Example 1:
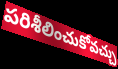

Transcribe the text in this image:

పరిశీలించుకోవచ్చు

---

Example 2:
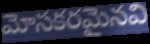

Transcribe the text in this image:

మోసకరమైనవి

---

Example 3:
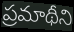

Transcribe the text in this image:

ప్రమాథీని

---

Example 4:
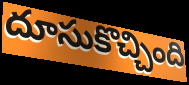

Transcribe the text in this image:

దూసుకొచ్చింది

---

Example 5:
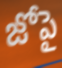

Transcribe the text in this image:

జోపై